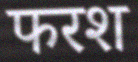
फरश